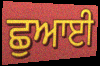
ਛੁਆਈ